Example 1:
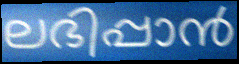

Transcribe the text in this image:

ലഭിപ്പാൻ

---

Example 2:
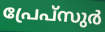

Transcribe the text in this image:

പ്രേപ്സുർ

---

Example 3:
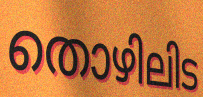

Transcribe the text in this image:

തൊഴിലിട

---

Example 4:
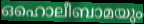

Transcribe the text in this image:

ഒഹൊലീബാമയും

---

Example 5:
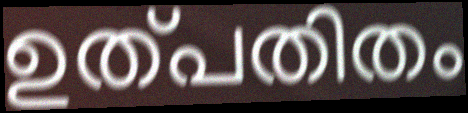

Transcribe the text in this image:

ഉത്പതിതം